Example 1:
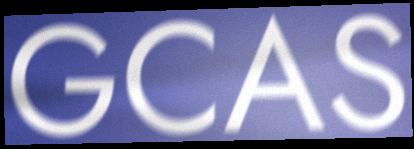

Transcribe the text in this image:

GCAS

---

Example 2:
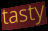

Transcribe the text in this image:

tasty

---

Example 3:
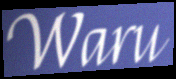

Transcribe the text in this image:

Waru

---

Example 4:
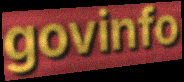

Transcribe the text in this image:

govinfo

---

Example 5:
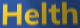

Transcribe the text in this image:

Helth